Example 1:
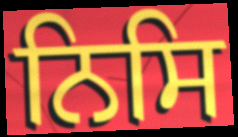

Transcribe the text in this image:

ਨਿਸਿ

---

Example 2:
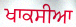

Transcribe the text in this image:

ਖਾਕਸੀਆ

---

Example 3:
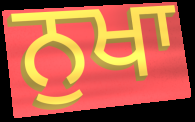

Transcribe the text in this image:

ਨੁਖਾ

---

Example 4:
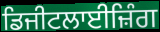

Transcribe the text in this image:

ਡਿਜੀਟਲਾਈਜ਼ਿੰਗ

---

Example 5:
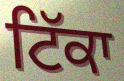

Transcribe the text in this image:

ਟਿੱਕਾ